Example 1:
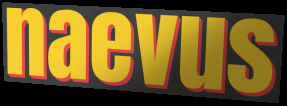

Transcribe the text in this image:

naevus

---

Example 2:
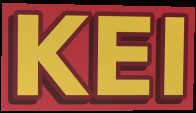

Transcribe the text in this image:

KEI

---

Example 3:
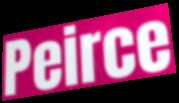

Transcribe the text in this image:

Peirce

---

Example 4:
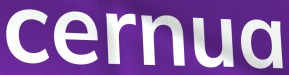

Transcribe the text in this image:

cernua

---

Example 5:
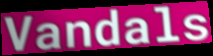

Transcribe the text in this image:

Vandals